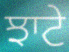
ਝਾਟੇ